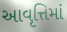
આવૃત્તિમાં